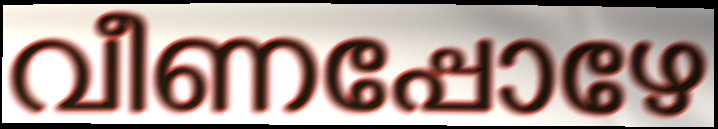
വീണപ്പോഴേ